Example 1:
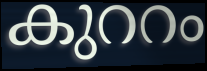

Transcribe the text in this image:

കുററം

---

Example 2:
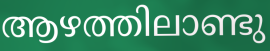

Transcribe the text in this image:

ആഴത്തിലാണ്ടു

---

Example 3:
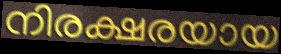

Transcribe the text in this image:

നിരക്ഷരയായ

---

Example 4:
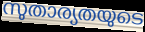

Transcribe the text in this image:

സുതാര്യതയുടെ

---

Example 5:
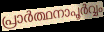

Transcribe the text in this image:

പ്രാർത്ഥനാപൂർവ്വം